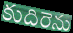
కుదిరెను